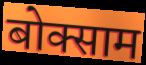
बोक्साम